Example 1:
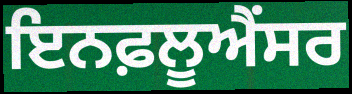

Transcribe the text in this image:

ਇਨਫ਼ਲੂਐਂਸਰ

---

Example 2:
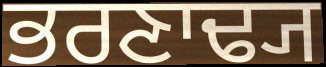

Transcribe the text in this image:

ਭਰਣਾਢ੍ਯ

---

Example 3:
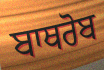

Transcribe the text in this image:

ਬਾਥਰੋਬ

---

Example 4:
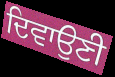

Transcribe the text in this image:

ਦਿਵਾਉਣੀ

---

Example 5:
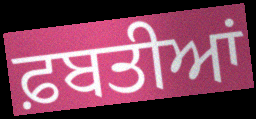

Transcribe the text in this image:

ਫ਼ਬਤੀਆਂ